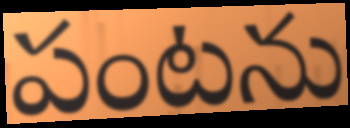
పంటను